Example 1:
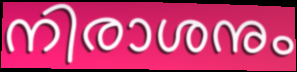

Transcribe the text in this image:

നിരാശനും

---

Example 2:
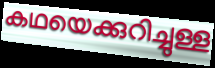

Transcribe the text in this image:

കഥയെക്കുറിച്ചുള്ള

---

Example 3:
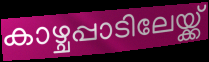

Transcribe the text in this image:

കാഴ്ചപ്പാടിലേയ്ക്ക്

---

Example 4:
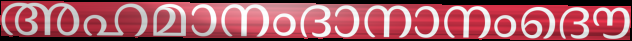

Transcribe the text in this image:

അഹമാനംദാനാനംദൌ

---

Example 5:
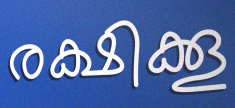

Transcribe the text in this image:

രക്ഷിക്കൂ